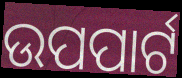
ଉପପାର୍ଟ